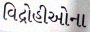
વિદ્રોહીઓના